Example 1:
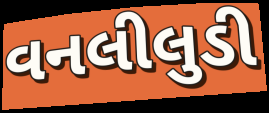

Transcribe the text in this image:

વનલીલુડી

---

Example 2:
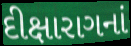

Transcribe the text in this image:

દીક્ષારાગનાં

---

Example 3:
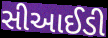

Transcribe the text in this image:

સીઆઈડી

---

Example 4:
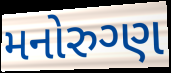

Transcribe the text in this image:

મનોરુગ્ણ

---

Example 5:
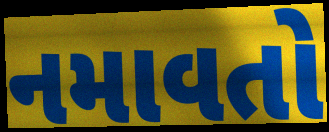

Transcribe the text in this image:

નમાવતો